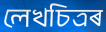
লেখচিত্ৰৰ